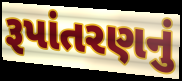
રૂપાંતરણનું